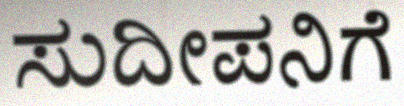
ಸುದೀಪನಿಗೆ